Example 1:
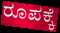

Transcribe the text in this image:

ರೂಪಕ್ಕೆ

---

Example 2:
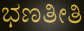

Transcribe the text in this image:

ಭಣತೀತಿ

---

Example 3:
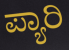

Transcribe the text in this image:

ಪ್ಯಾರಿ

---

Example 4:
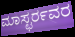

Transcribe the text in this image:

ಮಾಸ್ಟರ್ರವರ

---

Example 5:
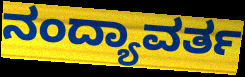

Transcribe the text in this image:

ನಂದ್ಯಾವರ್ತ